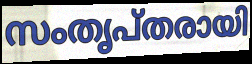
സംതൃപ്തരായി